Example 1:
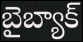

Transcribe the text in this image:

బైబ్యాక్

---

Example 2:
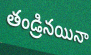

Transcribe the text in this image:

తండ్రినయినా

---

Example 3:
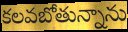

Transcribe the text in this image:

కలవబోతున్నాను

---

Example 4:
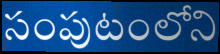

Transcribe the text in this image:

సంపుటంలోని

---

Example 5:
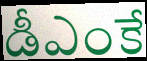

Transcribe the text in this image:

డీఎంకే